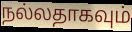
நல்லதாகவும்